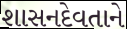
શાસનદેવતાને